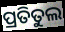
ପ୍ରତିତୁଲ